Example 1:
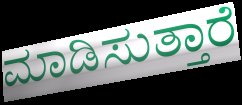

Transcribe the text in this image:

ಮಾಡಿಸುತ್ತಾರೆ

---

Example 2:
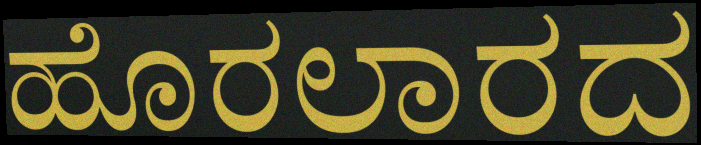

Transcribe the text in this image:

ಹೊರಲಾರದ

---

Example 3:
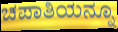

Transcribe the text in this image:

ಚಪಾತಿಯನ್ನೂ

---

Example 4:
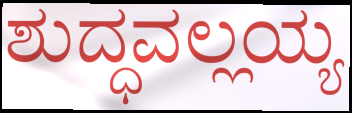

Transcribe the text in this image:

ಶುದ್ಧವಲ್ಲಯ್ಯ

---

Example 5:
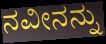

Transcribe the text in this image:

ನವೀನನ್ನು